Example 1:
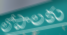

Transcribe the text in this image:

లోపాలకు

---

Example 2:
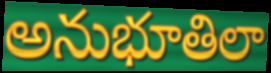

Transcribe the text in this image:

అనుభూతిలా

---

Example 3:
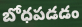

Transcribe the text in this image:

బోధపడడం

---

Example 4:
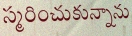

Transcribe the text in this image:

స్మరించుకున్నాను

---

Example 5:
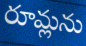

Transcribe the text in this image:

రూమ్లను